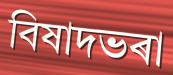
বিষাদভৰা